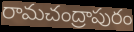
రామచంద్రాపురం